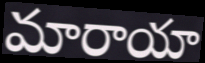
మారాయా